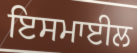
ਇਸਮਾਈਲ